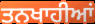
ਤਨਖਾਹੀਆਂ